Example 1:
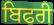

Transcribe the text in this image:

ਬਿਫਰੀ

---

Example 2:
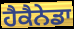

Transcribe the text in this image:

ਹੈਕੈਨੇਡਾ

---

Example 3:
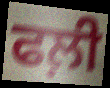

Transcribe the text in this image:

ਫਲ਼ੀ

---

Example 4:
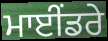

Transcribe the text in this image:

ਮਾਈਂਡਰੇ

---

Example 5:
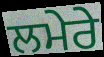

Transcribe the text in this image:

ਲਮੇਰੇ